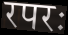
रपरः